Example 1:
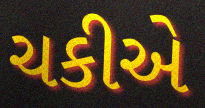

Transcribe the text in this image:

ચકીએ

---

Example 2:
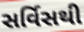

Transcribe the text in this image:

સર્વિસથી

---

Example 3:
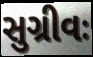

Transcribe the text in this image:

સુગ્રીવઃ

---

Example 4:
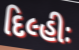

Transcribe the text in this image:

દિલ્હીઃ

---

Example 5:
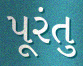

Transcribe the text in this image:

પૂરંતુ